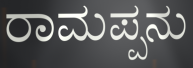
ರಾಮಪ್ಪನು